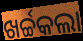
ଖର୍ଚ୍ଚକଲା